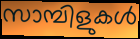
സാമ്പിളുകൾ